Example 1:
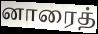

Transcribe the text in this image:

னாரைத்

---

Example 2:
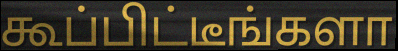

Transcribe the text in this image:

கூப்பிட்டீங்களா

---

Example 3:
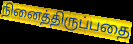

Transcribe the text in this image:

நினைத்திருப்பதை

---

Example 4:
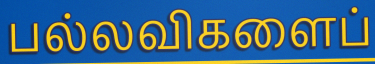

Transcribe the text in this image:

பல்லவிகளைப்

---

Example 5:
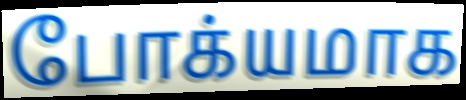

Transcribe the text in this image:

போக்யமாக